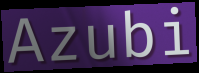
Azubi